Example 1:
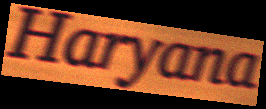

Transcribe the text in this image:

Haryana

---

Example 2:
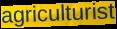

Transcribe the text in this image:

agriculturist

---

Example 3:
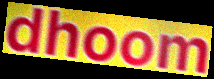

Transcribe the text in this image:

dhoom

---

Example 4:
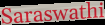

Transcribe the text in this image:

Saraswathi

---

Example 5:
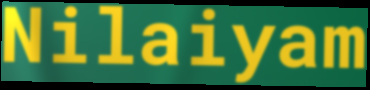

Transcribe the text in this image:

Nilaiyam